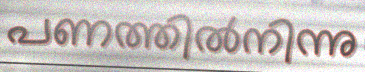
പണത്തിൽനിന്നു